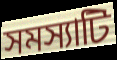
সমস্যাটি